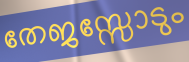
തേജസ്സോടും